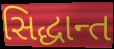
સિદ્ધાન્ત